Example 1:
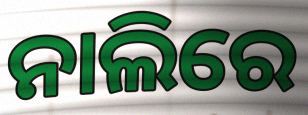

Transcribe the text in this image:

ନାଲିରେ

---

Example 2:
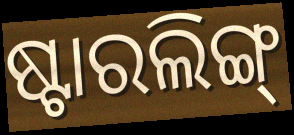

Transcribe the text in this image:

ଷ୍ଟାରଲିଙ୍ଗ୍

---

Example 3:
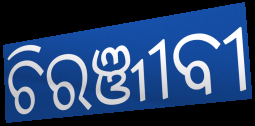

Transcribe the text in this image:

ଚିରଞ୍ଜୀବୀ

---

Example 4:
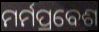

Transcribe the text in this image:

ମର୍ମପ୍ରବେଶ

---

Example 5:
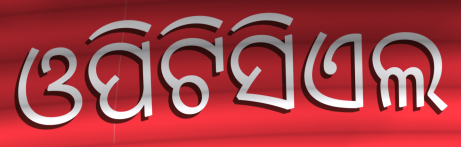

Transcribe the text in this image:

ଓପିଟିସିଏଲ